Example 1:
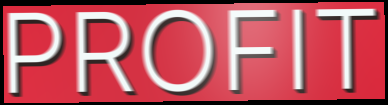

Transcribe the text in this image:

PROFIT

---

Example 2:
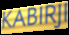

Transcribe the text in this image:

KABIRJI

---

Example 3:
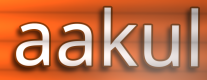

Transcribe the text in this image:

aakul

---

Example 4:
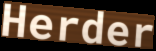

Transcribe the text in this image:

Herder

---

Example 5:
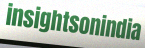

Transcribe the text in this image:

insightsonindia